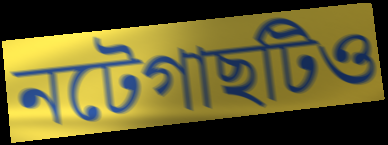
নটেগাছটিও